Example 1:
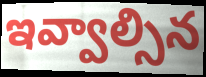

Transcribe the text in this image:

ఇవ్వాల్సిన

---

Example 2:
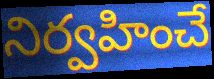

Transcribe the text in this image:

నిర్వహించే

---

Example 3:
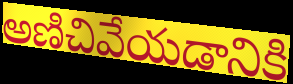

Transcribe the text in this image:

అణిచివేయడానికి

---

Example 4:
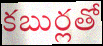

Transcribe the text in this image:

కబుర్లతో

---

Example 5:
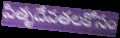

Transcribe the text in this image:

పితృదేవతలకోసం